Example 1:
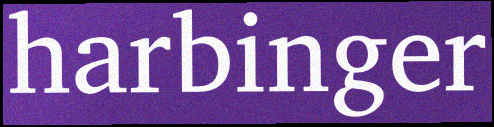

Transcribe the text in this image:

harbinger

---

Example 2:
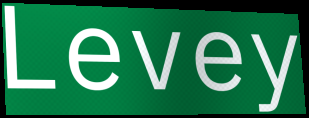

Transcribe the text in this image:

Levey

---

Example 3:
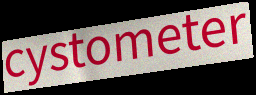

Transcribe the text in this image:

cystometer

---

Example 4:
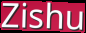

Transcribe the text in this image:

Zishu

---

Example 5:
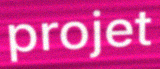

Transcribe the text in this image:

projet